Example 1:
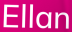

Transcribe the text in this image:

Ellan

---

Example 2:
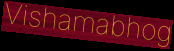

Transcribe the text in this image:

Vishamabhog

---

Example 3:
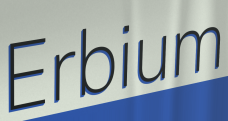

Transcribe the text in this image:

Erbium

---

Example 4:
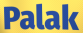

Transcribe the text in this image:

Palak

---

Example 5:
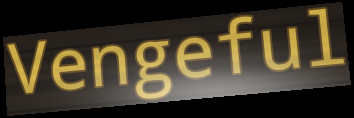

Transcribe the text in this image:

Vengeful